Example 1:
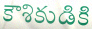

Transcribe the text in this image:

కౌశికుడికి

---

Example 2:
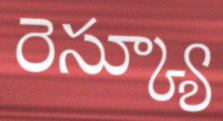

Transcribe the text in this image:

రెస్క్యూ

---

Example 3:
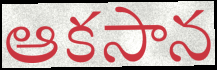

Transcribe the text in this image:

ఆకసాన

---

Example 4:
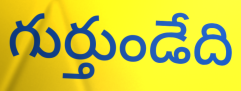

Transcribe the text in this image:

గుర్తుండేది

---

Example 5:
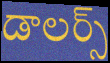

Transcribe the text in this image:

డాలర్స్